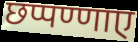
छप्पण्णाए